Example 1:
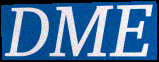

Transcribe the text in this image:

DME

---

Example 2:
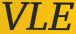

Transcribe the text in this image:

VLE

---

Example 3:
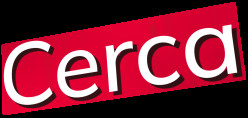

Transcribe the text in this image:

Cerca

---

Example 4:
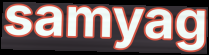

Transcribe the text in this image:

samyag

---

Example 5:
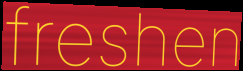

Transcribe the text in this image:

freshen